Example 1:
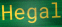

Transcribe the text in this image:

Hegal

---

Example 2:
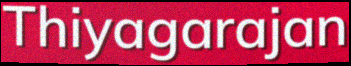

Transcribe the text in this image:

Thiyagarajan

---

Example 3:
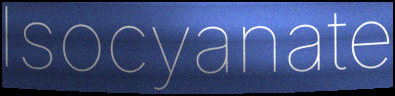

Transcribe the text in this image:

Isocyanate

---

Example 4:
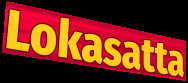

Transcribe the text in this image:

Lokasatta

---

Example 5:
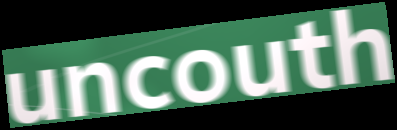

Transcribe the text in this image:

uncouth